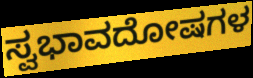
ಸ್ವಭಾವದೋಷಗಳ